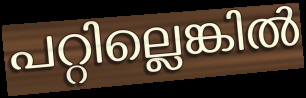
പറ്റില്ലെങ്കിൽ